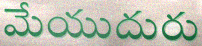
మేయుదురు